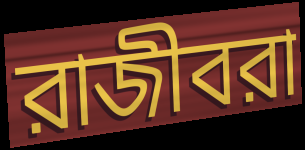
রাজীবরা